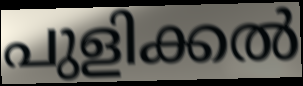
പുളിക്കൽ